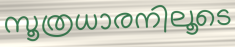
സൂത്രധാരനിലൂടെ